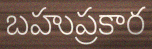
బహుప్రకార